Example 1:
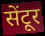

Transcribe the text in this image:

सेंटूर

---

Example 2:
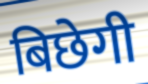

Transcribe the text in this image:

बिछेगी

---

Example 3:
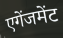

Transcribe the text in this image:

एगेंजमेंट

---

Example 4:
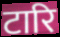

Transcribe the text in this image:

टारि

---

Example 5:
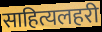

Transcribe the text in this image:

साहित्यलहरी